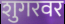
शुगरवर